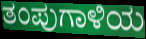
ತಂಪುಗಾಳಿಯ